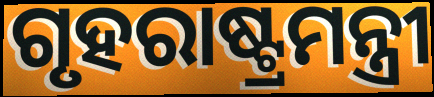
ଗୃହରାଷ୍ଟ୍ରମନ୍ତ୍ରୀ